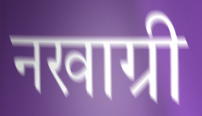
नखाग्री